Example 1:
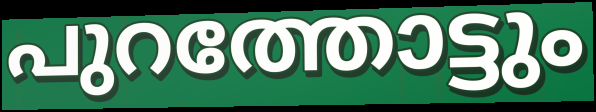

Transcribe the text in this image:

പുറത്തോട്ടും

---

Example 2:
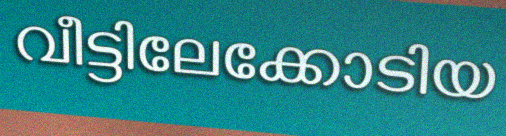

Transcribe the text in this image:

വീട്ടിലേക്കോടിയ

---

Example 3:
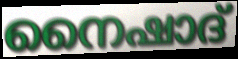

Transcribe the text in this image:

നൈഷാദ്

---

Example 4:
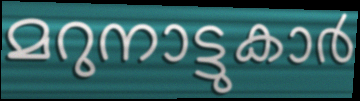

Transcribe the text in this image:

മറുനാട്ടുകാർ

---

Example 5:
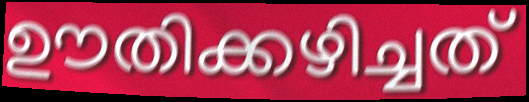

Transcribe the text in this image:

ഊതിക്കഴിച്ചത്